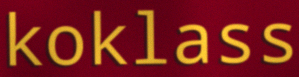
koklass